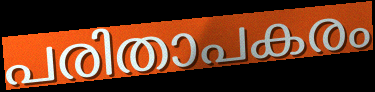
പരിതാപകരം